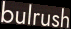
bulrush